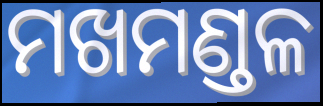
ମଖମଣ୍ଡଳ